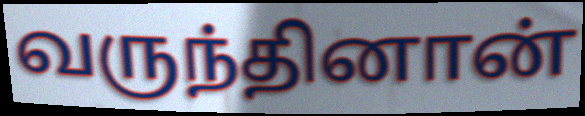
வருந்தினான்